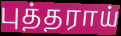
புத்தராய்